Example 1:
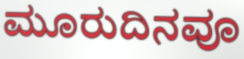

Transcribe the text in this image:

ಮೂರುದಿನವೂ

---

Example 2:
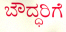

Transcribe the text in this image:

ಬೌದ್ಧರಿಗೆ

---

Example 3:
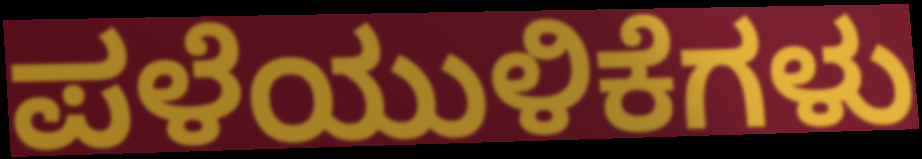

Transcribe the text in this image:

ಪಳೆಯುಳಿಕೆಗಳು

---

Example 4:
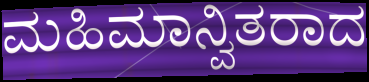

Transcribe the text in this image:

ಮಹಿಮಾನ್ವಿತರಾದ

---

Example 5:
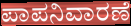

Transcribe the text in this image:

ಪಾಪನಿವಾರಣೆ